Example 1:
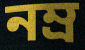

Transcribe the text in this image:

নম্ৰ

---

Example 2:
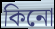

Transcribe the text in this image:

কিনো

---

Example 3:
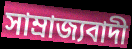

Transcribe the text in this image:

সাম্ৰাজ্যবাদী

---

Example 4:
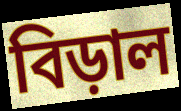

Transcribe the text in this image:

বিড়াল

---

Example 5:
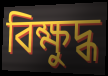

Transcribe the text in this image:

বিক্ষুদ্ধ